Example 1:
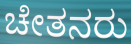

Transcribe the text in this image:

ಚೇತನರು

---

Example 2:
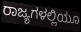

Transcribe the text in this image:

ರಾಜ್ಯಗಳಲ್ಲಿಯೂ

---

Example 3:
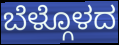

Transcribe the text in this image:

ಬೆಳ್ಗೊಳದ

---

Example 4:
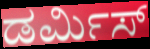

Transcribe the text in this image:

ಡರ್ಮಿಸ್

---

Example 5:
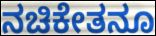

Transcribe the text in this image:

ನಚಿಕೇತನೂ